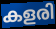
കളരി